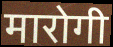
मारोगी